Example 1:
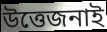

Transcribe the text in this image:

উত্তেজনাই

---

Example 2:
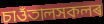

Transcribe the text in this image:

চাওঁতালসকলৰ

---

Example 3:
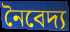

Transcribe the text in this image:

নৈবেদ্য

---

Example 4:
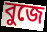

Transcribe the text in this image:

বুজে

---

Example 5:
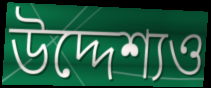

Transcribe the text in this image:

উদ্দেশ্যও